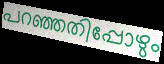
പറഞ്ഞതിപ്പോഴും